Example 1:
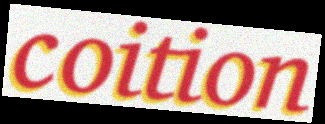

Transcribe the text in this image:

coition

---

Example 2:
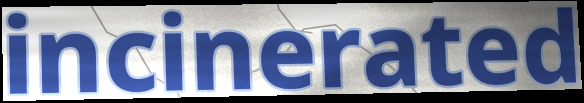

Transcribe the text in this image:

incinerated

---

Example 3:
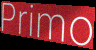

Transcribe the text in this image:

Primo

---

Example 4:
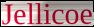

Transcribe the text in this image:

Jellicoe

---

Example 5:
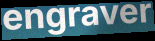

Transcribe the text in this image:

engraver